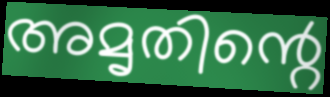
അമൃതിന്റെ